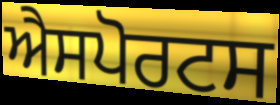
ਐਸਪੋਰਟਸ